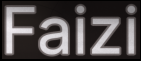
Faizi